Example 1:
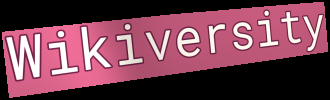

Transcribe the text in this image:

Wikiversity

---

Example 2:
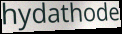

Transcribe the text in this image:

hydathode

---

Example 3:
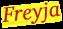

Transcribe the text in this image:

Freyja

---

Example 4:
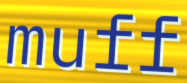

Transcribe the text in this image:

muff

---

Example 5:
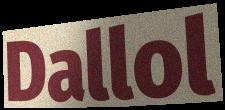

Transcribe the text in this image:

Dallol